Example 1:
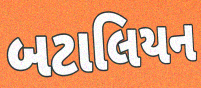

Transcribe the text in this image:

બટાલિયન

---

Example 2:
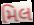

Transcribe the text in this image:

મિલ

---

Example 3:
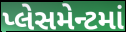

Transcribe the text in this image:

પ્લેસમેન્ટમાં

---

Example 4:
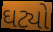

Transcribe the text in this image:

ઘટ્યો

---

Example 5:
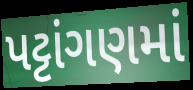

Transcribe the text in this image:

પટ્ટાંગણમાં